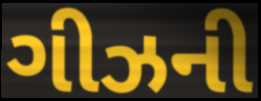
ગીઝની